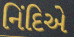
નિંદિએ